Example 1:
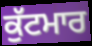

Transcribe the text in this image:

ਕੁੱਟਮਾਰ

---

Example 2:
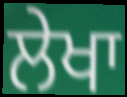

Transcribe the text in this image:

ਲੇਖਾ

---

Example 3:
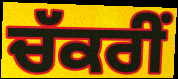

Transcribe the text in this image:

ਚੱਕਰੀਂ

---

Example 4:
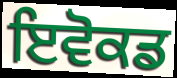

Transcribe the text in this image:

ਇਵੋਕਡ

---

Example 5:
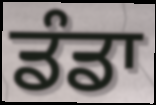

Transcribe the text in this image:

ਡੰਡਾ